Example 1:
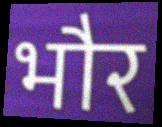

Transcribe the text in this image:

भौर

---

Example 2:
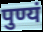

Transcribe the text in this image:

पुण्यं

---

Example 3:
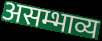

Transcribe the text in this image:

असम्भाव्य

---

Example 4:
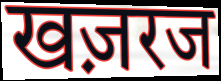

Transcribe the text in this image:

खज़रज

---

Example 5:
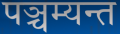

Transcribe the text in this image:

पञ्चम्यन्त